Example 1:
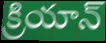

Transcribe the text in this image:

క్రియాన్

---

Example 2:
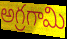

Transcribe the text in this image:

అగ్రగామి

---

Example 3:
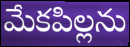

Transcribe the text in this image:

మేకపిల్లను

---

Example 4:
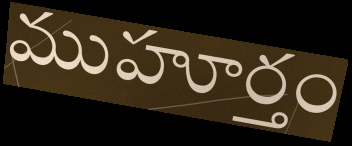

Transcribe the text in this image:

ముహూర్తం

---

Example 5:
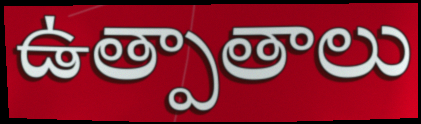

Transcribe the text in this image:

ఉత్పాతాలు